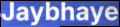
Jaybhaye